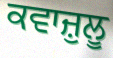
ਕਵਾਜ਼ੁਲੂ